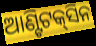
ଆଣ୍ଟିଟକ୍‌ସିନ